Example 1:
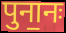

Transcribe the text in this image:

पुना॒नः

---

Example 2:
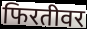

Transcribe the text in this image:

फिरतीवर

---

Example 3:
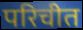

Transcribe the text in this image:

परिचीत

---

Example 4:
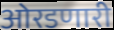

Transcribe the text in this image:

ओरडणारी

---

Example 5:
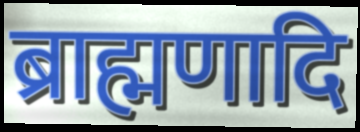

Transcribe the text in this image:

ब्राह्मणादि